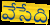
వేసేది